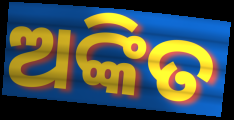
ଅଙ୍କିତ